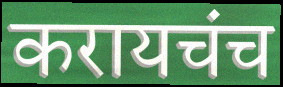
करायचंच